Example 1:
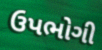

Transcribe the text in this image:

ઉપભોગી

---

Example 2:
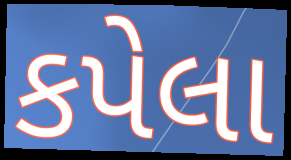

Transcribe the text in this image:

કપેલા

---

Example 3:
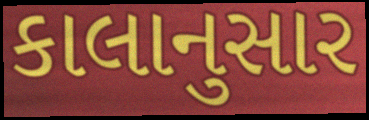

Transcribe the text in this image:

કાલાનુસાર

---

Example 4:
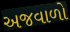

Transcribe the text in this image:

અજવાળો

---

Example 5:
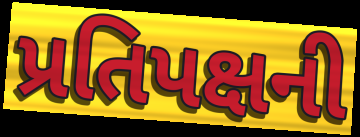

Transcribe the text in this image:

પ્રતિપક્ષની